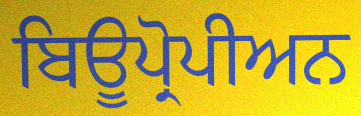
ਬਿਊਪ੍ਰੋਪੀਅਨ